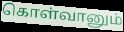
கொள்வானும்